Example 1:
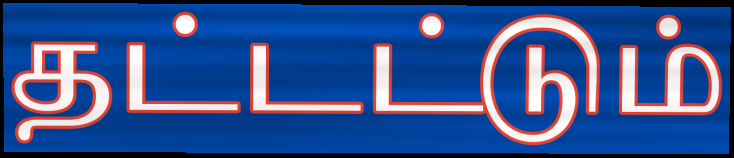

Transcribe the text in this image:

தட்டட்டும்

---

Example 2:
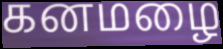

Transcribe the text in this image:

கனமழை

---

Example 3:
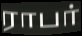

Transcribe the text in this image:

ராபர்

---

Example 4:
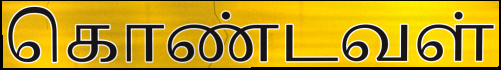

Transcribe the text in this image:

கொண்டவள்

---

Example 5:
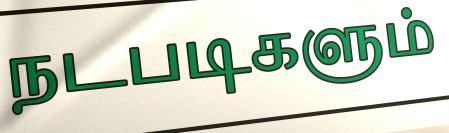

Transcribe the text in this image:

நடபடிகளும்